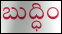
బుద్ధిం